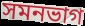
সমনভাগ